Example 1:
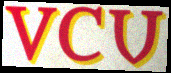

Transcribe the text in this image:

vcu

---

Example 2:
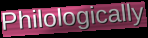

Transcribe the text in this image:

Philologically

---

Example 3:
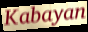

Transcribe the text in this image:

Kabayan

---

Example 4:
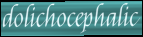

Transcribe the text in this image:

dolichocephalic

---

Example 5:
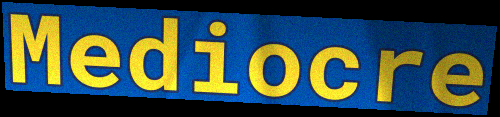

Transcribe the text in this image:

Mediocre